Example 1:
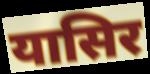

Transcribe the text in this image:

यासिर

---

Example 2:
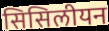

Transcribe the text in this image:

सिसिलीयन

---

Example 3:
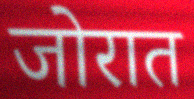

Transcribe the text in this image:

जोरात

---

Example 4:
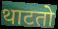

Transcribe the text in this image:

थाटतो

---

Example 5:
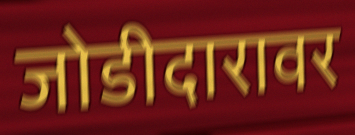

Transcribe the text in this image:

जोडीदारावर